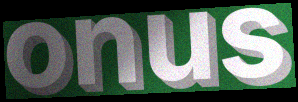
onus